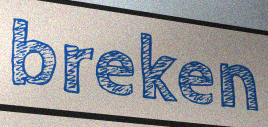
breken